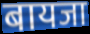
बायजा